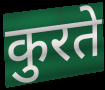
कुरते